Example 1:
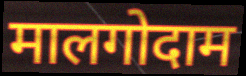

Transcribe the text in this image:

मालगोदाम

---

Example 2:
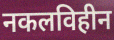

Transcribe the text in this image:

नकलविहीन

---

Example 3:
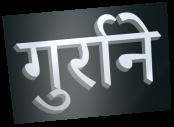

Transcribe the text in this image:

गुर्राने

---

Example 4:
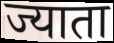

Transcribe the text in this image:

ज्याता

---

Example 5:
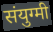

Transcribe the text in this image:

संयुग्मी